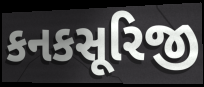
કનકસૂરિજી